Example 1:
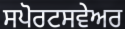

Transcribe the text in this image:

ਸਪੋਰਟਸਵੇਅਰ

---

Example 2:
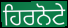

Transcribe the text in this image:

ਹਿਰਨੋਟੇ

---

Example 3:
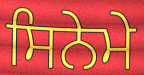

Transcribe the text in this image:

ਸਿਨੇਮੇ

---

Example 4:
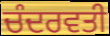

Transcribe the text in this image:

ਚੰਦਰਵਤੀ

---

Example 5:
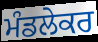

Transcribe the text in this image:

ਮੰਡਲੇਕਰ